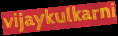
vijaykulkarni